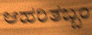
ಆಹರಿತಬ್ಬಂ